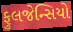
ફુલજેન્સિયો